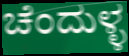
ಚೆಂದುಳ್ಳ